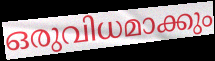
ഒരുവിധമാക്കും